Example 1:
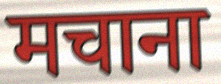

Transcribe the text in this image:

मचाना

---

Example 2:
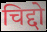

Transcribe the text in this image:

चिद्दो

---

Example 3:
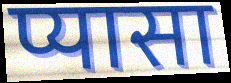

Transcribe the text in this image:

प्यासा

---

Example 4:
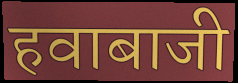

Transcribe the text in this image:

हवाबाजी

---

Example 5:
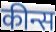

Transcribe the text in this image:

कीन्स